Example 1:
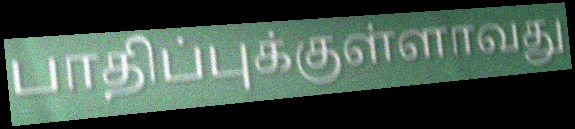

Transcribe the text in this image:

பாதிப்புக்குள்ளாவது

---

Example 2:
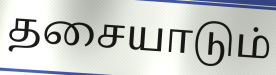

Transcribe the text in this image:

தசையாடும்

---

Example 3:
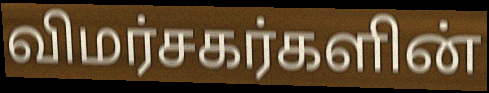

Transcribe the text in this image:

விமர்சகர்களின்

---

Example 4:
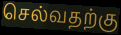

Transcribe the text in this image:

செல்வதற்கு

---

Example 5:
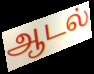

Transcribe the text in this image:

ஆடல்